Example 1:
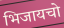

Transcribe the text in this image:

भिजायचो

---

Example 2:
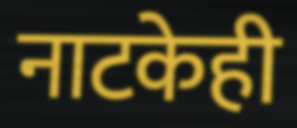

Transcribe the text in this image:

नाटकेही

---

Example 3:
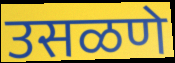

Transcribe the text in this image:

उसळणे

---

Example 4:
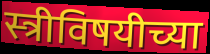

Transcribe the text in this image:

स्त्रीविषयीच्या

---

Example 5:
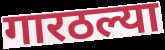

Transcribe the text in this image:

गारठल्या